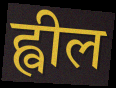
ह्वील